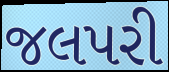
જલપરી